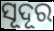
ସୂଦୂର